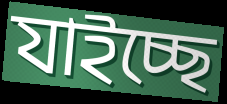
যাইচ্ছে